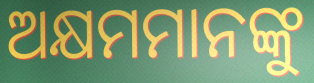
ଅକ୍ଷମମାନଙ୍କୁ